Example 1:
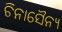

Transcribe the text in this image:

ଚିନାସୈନ୍ୟ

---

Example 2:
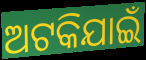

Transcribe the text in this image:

ଅଟକିଯାଇଁ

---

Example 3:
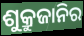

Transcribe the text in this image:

ଶୁକ୍ରୁଜାନିର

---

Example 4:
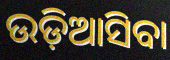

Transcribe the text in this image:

ଉଡ଼ିଆସିବା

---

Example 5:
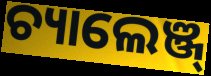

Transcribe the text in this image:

ଚ୍ୟାଲେଞ୍ଜ୍